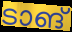
ടാങ്